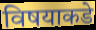
विषयाकडे